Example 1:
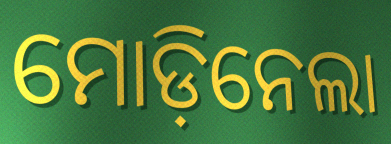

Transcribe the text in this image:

ମୋଡ଼ିନେଲା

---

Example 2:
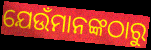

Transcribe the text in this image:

ଯେଉଁମାନଙ୍କଠାରୁ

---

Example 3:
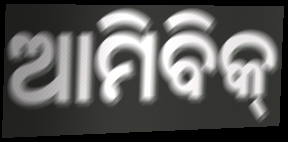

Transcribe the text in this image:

ଆମିବିକ୍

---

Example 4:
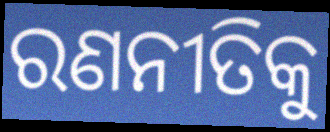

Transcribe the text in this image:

ରଣନୀତିକୁ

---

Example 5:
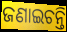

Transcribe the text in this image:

ଜଣାଇଚନ୍ତି